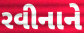
રવીનાને